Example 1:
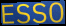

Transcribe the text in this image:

ESSO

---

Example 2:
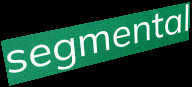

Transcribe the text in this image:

segmental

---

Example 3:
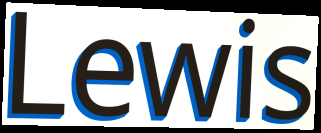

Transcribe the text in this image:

Lewis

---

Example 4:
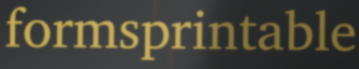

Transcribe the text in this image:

formsprintable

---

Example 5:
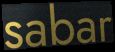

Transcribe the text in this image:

sabar